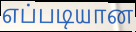
எப்படியான